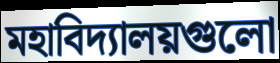
মহাবিদ্যালয়গুলো